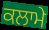
ਕਲਾਮੇ